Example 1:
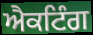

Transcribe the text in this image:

ਐਕਟਿੰਗ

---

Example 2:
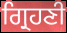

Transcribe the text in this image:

ਗ੍ਰਿਹਣੀ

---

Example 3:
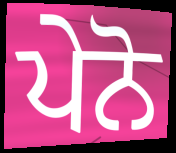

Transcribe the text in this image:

ਪੇਨੋ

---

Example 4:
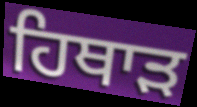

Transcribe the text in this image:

ਹਿਥਾੜ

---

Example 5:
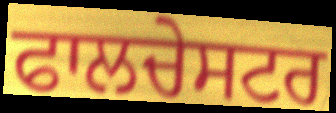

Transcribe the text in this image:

ਫਾਲਚੇਸਟਰ